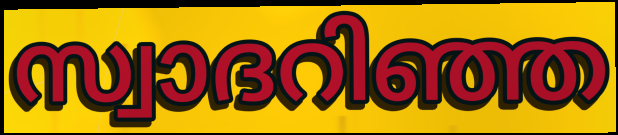
സ്വാദറിഞ്ഞ